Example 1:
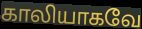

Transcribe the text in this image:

காலியாகவே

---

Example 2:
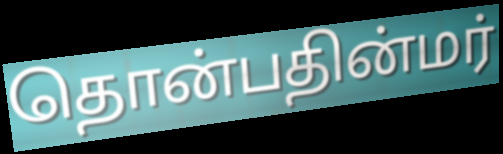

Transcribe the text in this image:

தொன்பதின்மர்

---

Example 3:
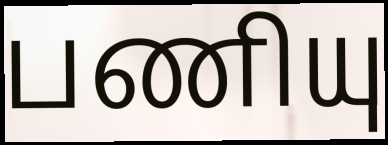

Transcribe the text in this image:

பணியு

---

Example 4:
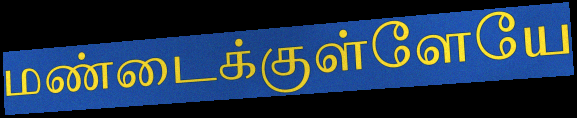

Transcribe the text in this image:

மண்டைக்குள்ளேயே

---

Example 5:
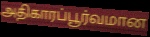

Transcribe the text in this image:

அதிகாரப்பூர்வமான